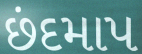
છંદમાપ